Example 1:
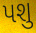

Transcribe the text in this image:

પશુ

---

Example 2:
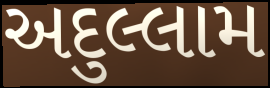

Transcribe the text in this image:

અદુલ્લામ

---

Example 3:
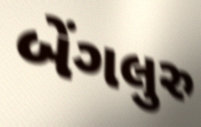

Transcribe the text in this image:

બેંગલુરુ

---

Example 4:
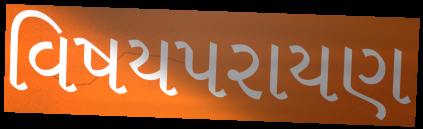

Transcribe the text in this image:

વિષયપરાયણ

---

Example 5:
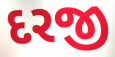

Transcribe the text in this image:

દરજી